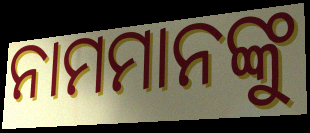
ନାମମାନଙ୍କୁ